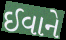
ઈવાને